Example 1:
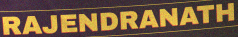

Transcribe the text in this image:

RAJENDRANATH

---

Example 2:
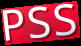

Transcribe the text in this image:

PSS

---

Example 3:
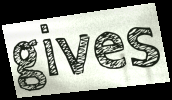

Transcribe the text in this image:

gives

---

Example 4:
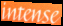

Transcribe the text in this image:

intense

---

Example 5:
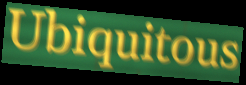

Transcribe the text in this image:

Ubiquitous